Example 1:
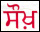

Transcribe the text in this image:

ਸੌਖ਼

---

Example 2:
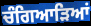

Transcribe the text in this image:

ਚੰਗਿਆੜਿਆਂ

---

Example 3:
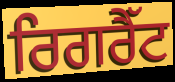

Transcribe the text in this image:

ਰਿਗਰੈੱਟ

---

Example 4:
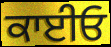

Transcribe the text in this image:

ਕਾਈਓ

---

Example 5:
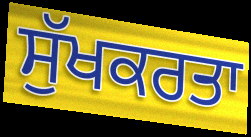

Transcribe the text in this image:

ਸੁੱਖਕਰਤਾ